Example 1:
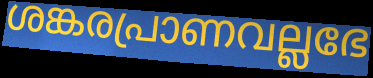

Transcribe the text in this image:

ശങ്കരപ്രാണവല്ലഭേ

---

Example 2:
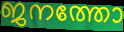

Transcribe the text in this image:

ജനത്തോ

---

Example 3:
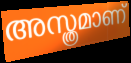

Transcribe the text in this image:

അസ്ത്രമാണ്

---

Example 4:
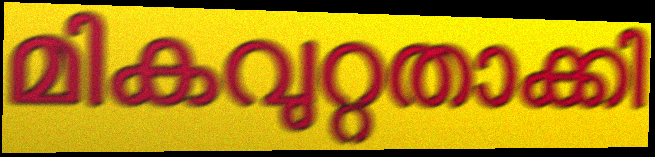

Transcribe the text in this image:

മികവുറ്റതാക്കി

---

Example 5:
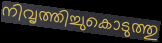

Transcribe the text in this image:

നിവൃത്തിച്ചുകൊടുത്തു